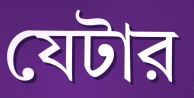
যেটার